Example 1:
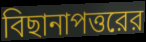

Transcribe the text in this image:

বিছানাপত্তরের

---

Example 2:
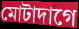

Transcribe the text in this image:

মোটাদাগে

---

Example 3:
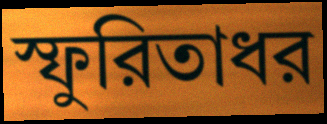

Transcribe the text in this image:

স্ফুরিতাধর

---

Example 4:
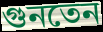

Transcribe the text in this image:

গুনতেন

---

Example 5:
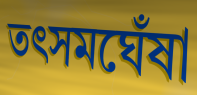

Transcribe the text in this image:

তৎসমঘেঁষা